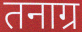
तनाग्र